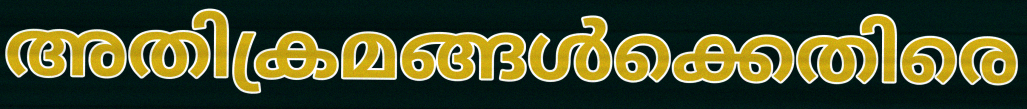
അതിക്രമങ്ങൾക്കെതിരെ